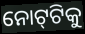
ନୋଟ୍‌ଟିକୁ